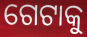
ଗେଟାକୁ